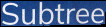
Subtree